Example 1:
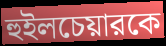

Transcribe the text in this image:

হুইলচেয়ারকে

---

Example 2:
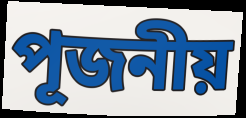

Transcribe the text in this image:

পূজনীয়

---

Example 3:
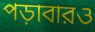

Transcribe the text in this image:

পড়াবারও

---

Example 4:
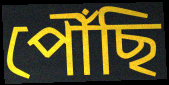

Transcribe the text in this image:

পৌঁছি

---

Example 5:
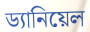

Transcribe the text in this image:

ড্যানিয়েল